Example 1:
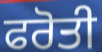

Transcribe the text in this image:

ਫਰੋਤੀ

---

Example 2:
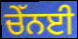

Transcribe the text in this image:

ਚੇੱਨਈ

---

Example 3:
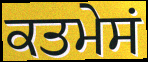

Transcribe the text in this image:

ਕਤਮੇਸਂ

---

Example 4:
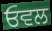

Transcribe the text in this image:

ਓਵਲ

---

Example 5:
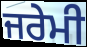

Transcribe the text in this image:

ਜਰੇਮੀ